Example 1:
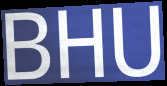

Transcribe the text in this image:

BHU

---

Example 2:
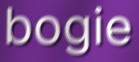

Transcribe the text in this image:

bogie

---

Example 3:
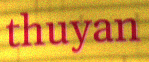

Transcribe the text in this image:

thuyan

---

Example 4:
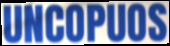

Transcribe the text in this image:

UNCOPUOS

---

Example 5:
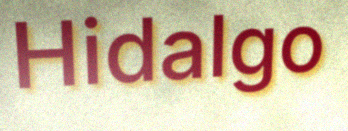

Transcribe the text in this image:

Hidalgo